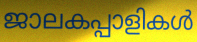
ജാലകപ്പാളികൾ